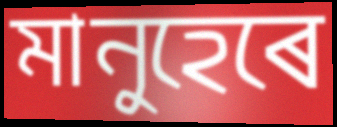
মানুহেৰে